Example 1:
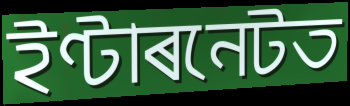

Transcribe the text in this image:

ইণ্টাৰনেটত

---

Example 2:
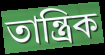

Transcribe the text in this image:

তান্ত্ৰিক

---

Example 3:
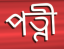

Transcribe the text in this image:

পত্নী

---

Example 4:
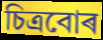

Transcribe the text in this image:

চিত্ৰবোৰ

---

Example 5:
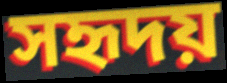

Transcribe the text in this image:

সহৃদয়